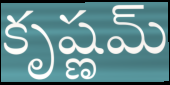
కృష్ణమ్